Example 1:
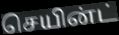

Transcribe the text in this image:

செயின்ட்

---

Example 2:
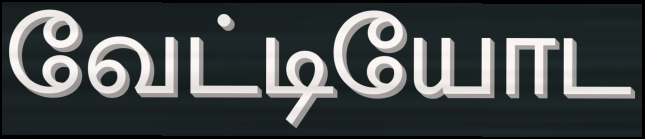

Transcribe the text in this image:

வேட்டியோட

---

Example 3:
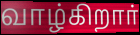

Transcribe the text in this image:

வாழ்கிறார்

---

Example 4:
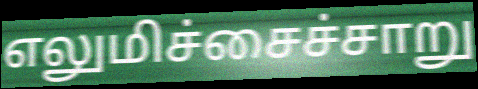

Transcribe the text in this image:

எலுமிச்சைச்சாறு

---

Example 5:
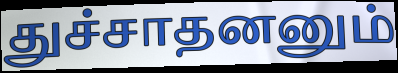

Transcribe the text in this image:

துச்சாதனனும்